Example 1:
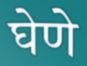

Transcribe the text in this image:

घेणे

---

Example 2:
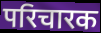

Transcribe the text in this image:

परिचारक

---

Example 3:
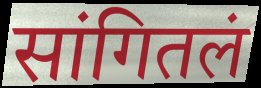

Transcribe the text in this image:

सांगितलं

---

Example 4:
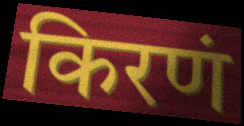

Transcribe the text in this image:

किरणं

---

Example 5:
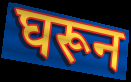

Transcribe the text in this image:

घरून